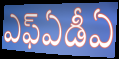
ఎఫ్ఏడీఏ